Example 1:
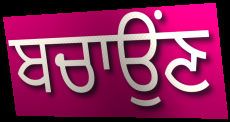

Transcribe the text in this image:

ਬਚਾਉਂਣ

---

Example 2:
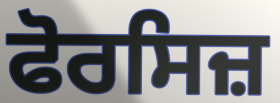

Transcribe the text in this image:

ਫੋਰਸਿਜ਼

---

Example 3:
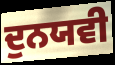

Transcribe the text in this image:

ਦੁਨਯਵੀ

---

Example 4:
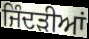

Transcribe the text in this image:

ਜਿੰਦੜੀਆਂ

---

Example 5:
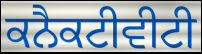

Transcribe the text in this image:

ਕਨੈਕਟੀਵੀਟੀ